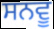
ਸਨਵੂ